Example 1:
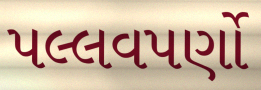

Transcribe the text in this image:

પલ્લવપર્ણો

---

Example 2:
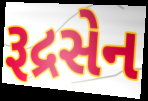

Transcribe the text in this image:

રૂદ્રસેન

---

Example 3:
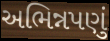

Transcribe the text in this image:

અભિન્નપણું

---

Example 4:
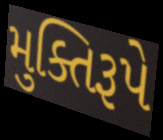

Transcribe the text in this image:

મુક્તિરૂપે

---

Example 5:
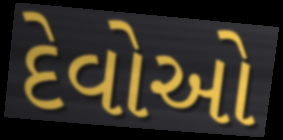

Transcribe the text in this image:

દેવોઓ